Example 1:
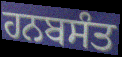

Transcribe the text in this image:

ਹਨਬਸੰਤ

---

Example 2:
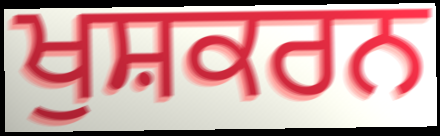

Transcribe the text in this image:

ਖੁਸ਼ਕਰਨ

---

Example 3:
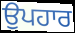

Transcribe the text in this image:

ਉਪਹਾਰ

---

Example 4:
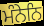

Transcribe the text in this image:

ਮੰਨੇਨਿ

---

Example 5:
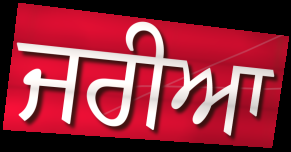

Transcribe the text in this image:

ਜਰੀਆ